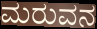
ಮರುವನ